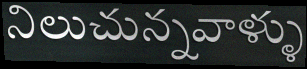
నిలుచున్నవాళ్ళు